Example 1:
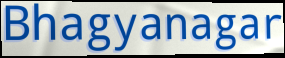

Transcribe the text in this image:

Bhagyanagar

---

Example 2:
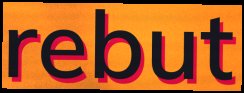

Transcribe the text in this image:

rebut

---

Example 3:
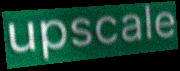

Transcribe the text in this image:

upscale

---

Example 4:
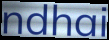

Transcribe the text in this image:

ndhai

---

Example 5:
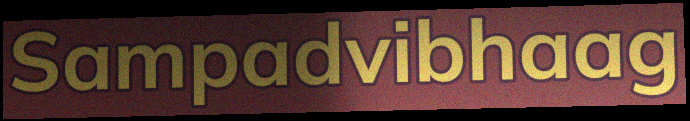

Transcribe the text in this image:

Sampadvibhaag